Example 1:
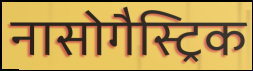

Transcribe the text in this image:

नासोगैस्ट्रिक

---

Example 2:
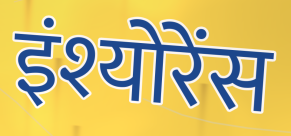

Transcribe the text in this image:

इंश्योरेंस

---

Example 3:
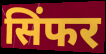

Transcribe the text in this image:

सिंफर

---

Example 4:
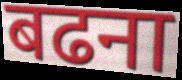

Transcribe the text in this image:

बढना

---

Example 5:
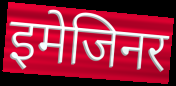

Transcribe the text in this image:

इमेजिनर